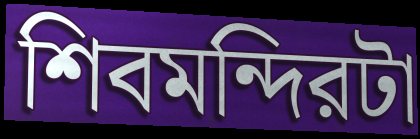
শিবমন্দিরটা